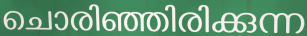
ചൊരിഞ്ഞിരിക്കുന്ന